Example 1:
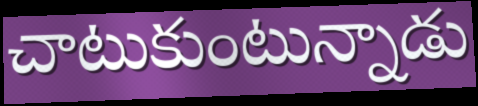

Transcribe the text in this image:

చాటుకుంటున్నాడు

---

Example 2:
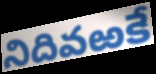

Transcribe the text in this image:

నిదివఱకే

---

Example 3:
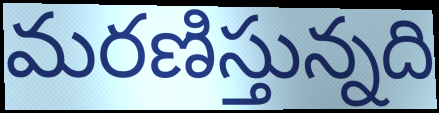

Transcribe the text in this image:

మరణిస్తున్నది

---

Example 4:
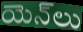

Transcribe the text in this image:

యెన్‌లు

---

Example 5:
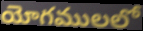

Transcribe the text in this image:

యోగములలో